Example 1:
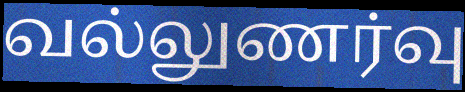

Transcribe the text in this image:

வல்லுணர்வு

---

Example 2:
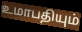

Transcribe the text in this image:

உமாபதியும்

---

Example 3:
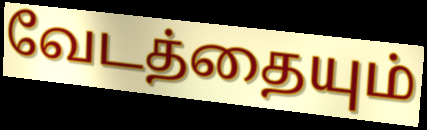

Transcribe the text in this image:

வேடத்தையும்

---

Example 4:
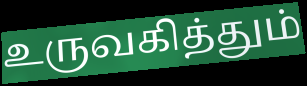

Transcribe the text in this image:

உருவகித்தும்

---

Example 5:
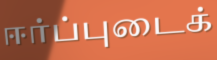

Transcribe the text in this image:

ஈர்ப்புடைக்